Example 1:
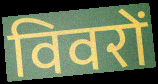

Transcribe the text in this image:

विवरों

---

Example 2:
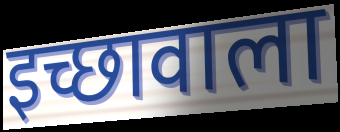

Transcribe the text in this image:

इच्छावाला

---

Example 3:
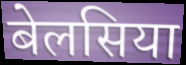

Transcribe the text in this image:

बेलसिया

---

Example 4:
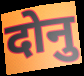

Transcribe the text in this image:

दोनु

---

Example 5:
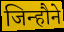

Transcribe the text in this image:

जिन्हौने